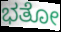
ಭತೋ